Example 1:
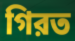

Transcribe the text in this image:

গিরত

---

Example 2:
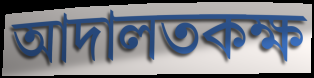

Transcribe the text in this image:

আদালতকক্ষ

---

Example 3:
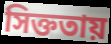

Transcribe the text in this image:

সিক্ততায়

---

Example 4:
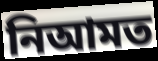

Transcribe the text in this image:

নিআমত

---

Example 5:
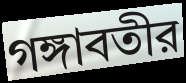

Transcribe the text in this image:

গঙ্গাবতীর